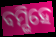
ବମ୍ଭିହେ